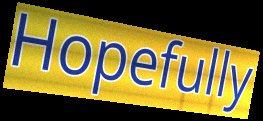
Hopefully